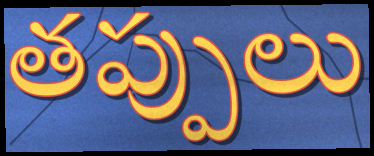
తప్పులు